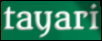
tayari